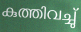
കുത്തിവച്ചു്